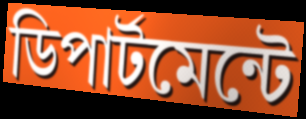
ডিপার্টমেন্টে